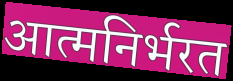
आत्मनिर्भरत